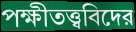
পক্ষীতত্ত্ববিদের